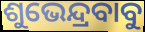
ଶୁଭେନ୍ଦ୍ରବାବୁ